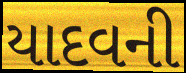
યાદવની